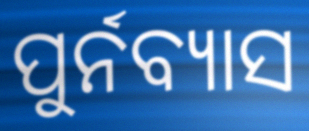
ପୁର୍ନବ୍ୟାସ